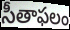
సీతాఫలం